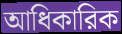
আধিকারিক